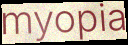
myopia